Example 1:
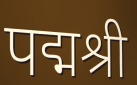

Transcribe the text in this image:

पद्मश्री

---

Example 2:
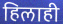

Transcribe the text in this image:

हिलाही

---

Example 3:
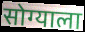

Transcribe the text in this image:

सोग्याला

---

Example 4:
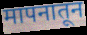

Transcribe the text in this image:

मापनातून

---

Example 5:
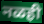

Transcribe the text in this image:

नळही